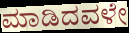
ಮಾಡಿದವಳೇ